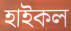
হাইকল